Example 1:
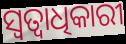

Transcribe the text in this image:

ସ୍ଵତ୍ୱାଧିକାରୀ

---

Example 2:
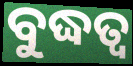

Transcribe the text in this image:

ବୁଦ୍ଧତ୍ୱ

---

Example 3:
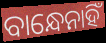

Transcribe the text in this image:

ବାନ୍ଧେନାହିଁ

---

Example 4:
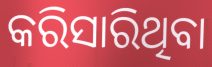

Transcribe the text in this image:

କରିସାରିଥିବା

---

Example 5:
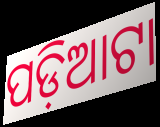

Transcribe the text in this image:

ପଡ଼ିଆଟା